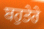
ਬਹੁਤੇਰੇ